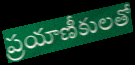
ప్రయాణీకులతో